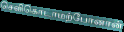
செவிகொடாமற்போனான்